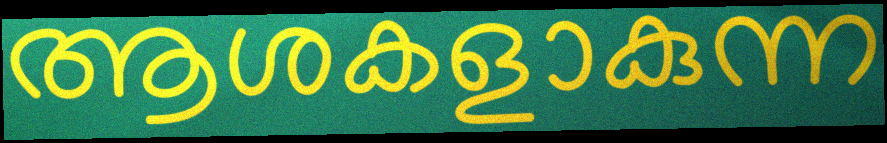
ആശകളാകുന്ന